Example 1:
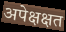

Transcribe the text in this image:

अपेक्षक्षत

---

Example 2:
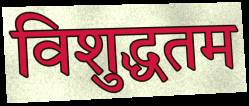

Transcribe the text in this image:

विशुद्धतम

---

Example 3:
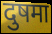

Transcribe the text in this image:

दुषमा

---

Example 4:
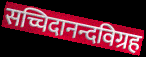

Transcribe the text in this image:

सच्चिदानन्दविग्रह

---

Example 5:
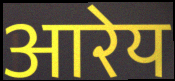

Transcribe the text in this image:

आरेय